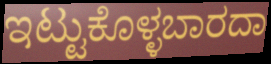
ಇಟ್ಟುಕೊಳ್ಳಬಾರದಾ